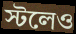
স্টলেও